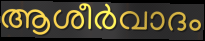
ആശീർവാദം